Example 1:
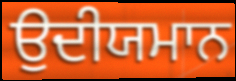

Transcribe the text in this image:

ਉਦੀਯਮਾਨ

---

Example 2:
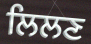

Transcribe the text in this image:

ਲਿਲਣ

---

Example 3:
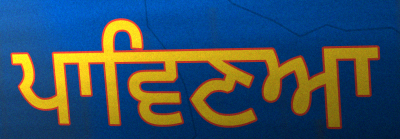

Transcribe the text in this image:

ਪਾਵਿਣਆ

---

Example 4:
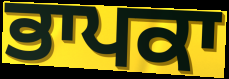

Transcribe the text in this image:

ਭਾਪਕਾ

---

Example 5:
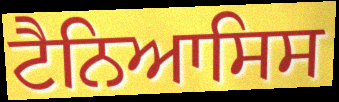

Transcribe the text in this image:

ਟੈਨਿਆਸਿਸ